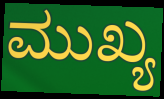
ಮುಖ್ಯ